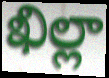
ఖిల్లా